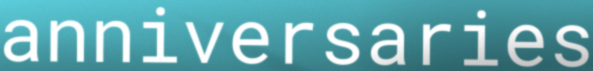
anniversaries